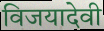
विजयादेवी